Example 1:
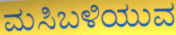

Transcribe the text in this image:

ಮಸಿಬಳಿಯುವ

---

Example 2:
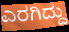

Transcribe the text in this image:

ಎರಗಿದ್ದು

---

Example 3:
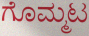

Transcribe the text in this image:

ಗೊಮ್ಮಟ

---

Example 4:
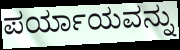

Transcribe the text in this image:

ಪರ್ಯಾಯವನ್ನು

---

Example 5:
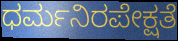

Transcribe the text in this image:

ಧರ್ಮನಿರಪೇಕ್ಷತೆ